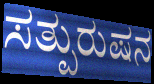
ಸತ್ಪುರುಷನ